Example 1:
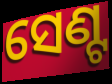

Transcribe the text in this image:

ସେଣ୍ଟ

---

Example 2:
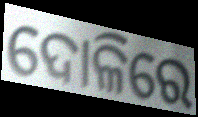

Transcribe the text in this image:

ଦୋଳିରେ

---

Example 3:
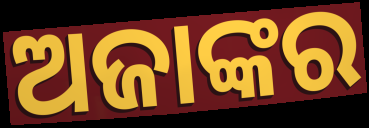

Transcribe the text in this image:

ଅଜାଙ୍କର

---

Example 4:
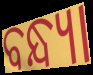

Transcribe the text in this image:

ବନ୍ଧ୍ୟା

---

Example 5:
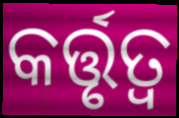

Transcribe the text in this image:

କର୍ତ୍ତୃତ୍ଵ